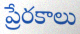
ప్రేరకాలు